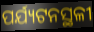
ପର୍ଯ୍ୟଟନସ୍ଥଳୀ